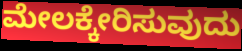
ಮೇಲಕ್ಕೇರಿಸುವುದು